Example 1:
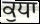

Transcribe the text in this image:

ਕੁਧਾ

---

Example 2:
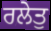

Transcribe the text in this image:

ਰਲੇਤੁ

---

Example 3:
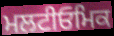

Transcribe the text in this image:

ਮਲਟੀਓਮਿਕ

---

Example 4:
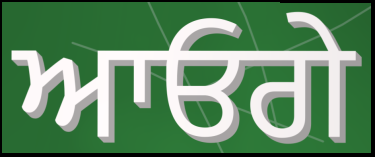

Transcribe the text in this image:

ਆਓਗੇ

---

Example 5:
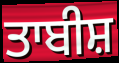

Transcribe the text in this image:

ਤਾਬੀਸ਼